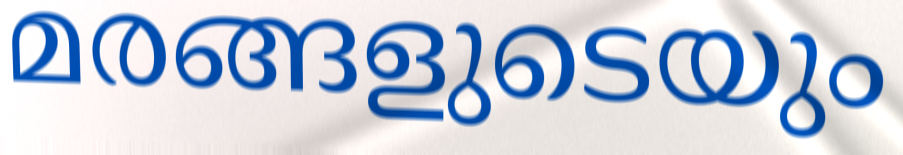
മരങ്ങളുടെയും